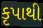
કૃપાથી